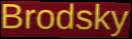
Brodsky